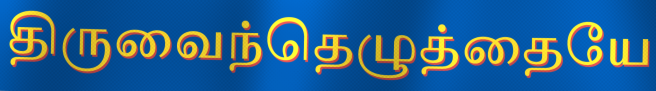
திருவைந்தெழுத்தையே